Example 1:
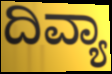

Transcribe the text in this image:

ದಿವ್ಯಾ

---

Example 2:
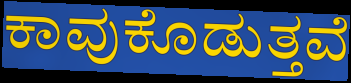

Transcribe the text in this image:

ಕಾವುಕೊಡುತ್ತವೆ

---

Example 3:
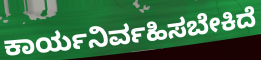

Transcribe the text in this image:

ಕಾರ್ಯನಿರ್ವಹಿಸಬೇಕಿದೆ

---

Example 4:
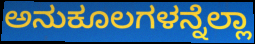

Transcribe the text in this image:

ಅನುಕೂಲಗಳನ್ನೆಲ್ಲಾ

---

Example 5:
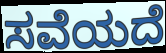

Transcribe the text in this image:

ಸವೆಯದೆ